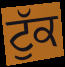
ਟੁੱਕ